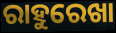
ରାହୁରେଖା